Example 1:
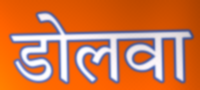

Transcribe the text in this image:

डोलवा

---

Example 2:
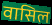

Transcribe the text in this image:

वासिल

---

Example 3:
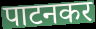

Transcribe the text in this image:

पाटनकर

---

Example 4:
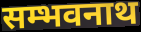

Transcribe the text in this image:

सम्भवनाथ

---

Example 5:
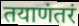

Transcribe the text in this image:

तयाणंतरं